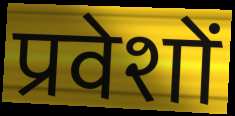
प्रवेशों